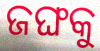
ଜଙ୍ଘକୁ